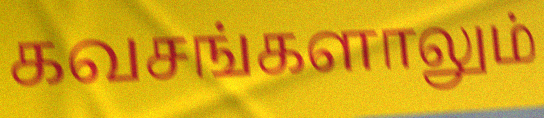
கவசங்களாலும்